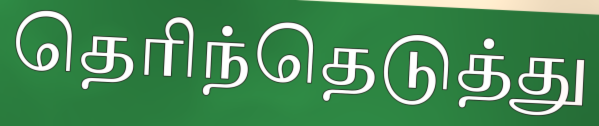
தெரிந்தெடுத்து